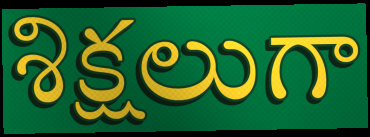
శిక్షలుగా